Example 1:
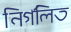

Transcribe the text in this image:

নির্গলিত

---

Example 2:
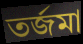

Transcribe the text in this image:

তর্জমা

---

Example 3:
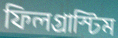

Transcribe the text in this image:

ফিলগ্রাস্টিম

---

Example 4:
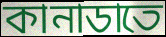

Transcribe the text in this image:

কানাডাতে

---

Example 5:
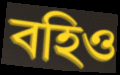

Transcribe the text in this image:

বহিও